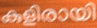
കുളിരായി